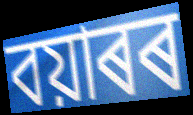
বয়াৰৰ